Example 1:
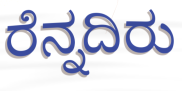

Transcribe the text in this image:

ರೆನ್ನದಿರು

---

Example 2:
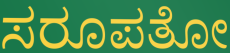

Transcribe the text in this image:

ಸರೂಪತೋ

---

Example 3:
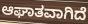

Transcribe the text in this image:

ಆಘಾತವಾಗಿದೆ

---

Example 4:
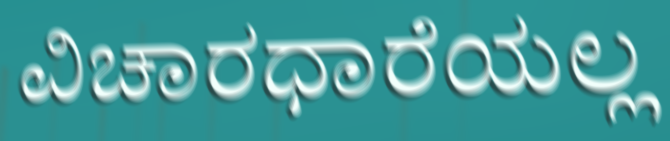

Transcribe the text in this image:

ವಿಚಾರಧಾರೆಯಲ್ಲ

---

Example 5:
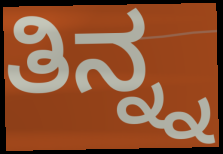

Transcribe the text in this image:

ತಿನ್ನ್ನ